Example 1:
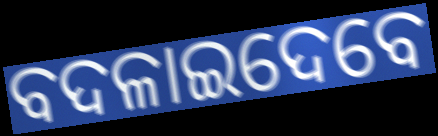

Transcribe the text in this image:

ବଦଳାଇଦେବେ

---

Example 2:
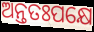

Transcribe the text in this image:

ଅନ୍ତତଃପକ୍ଷେ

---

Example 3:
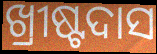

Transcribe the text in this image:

ଖ୍ରୀଷ୍ଟଦାସ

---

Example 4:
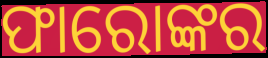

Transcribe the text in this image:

ଫାରୋଙ୍କର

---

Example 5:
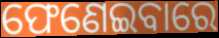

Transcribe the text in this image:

ଫେଣେଇବାରେ